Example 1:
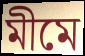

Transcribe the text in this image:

মীমে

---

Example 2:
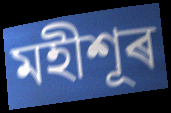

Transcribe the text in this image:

মহীশূৰ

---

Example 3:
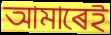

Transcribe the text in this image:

আমাৰেই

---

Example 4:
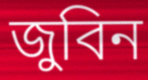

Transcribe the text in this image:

জুবিন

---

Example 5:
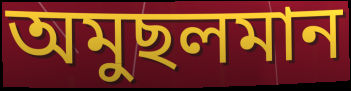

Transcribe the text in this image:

অমুছলমান